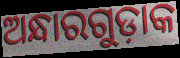
ଅନ୍ଧାରଗୁଡ଼ାକ